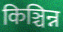
किञ्चिन्न